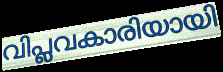
വിപ്ലവകാരിയായി